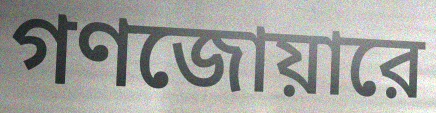
গণজোয়ারে